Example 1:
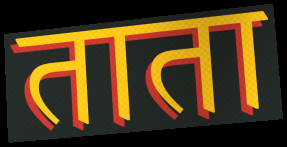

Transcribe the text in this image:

ताता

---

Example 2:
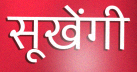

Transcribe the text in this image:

सूखेंगी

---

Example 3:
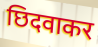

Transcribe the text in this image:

छिदवाकर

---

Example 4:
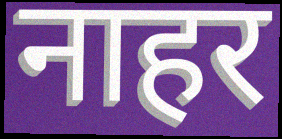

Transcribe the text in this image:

नाहर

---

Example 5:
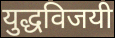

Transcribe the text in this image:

युद्धविजयी